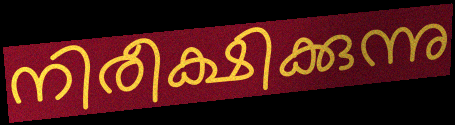
നിരീക്ഷിക്കുന്നു